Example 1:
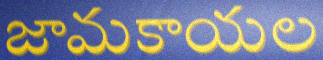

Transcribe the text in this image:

జామకాయల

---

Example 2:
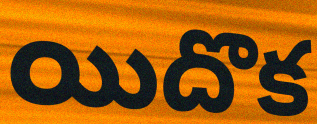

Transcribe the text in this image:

యిదొక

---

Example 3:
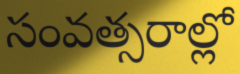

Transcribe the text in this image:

సంవత్సరాల్లో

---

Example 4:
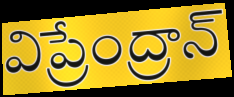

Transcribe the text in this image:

విప్రేంద్రాన్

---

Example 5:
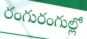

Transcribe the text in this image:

రంగురంగుల్లో